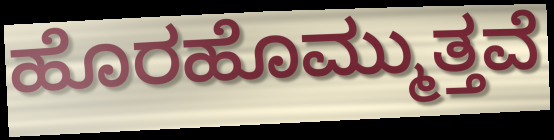
ಹೊರಹೊಮ್ಮುತ್ತವೆ